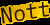
Nott